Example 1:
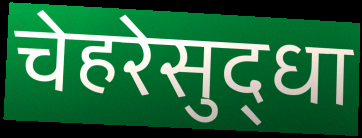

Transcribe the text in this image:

चेहरेसुद्धा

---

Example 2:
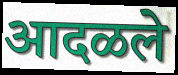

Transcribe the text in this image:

आदळले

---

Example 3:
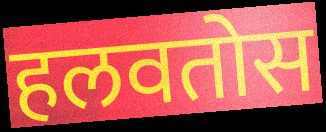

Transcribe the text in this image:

हलवतोस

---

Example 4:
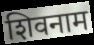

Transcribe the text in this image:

शिवनाम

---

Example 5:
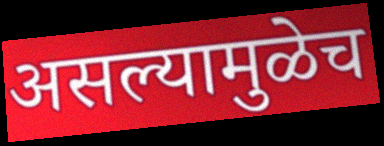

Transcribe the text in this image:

असल्यामुळेच